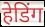
हेडिंग